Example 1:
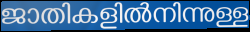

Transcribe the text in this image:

ജാതികളിൽനിന്നുള്ള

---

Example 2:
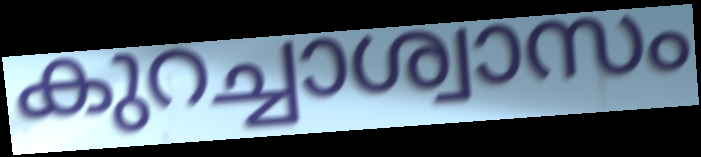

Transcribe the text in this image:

കുറച്ചാശ്വാസം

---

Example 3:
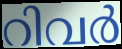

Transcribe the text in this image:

റിവർ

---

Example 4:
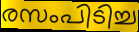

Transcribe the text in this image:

രസംപിടിച്ച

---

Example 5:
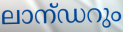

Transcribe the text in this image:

ലാന്ഡറും